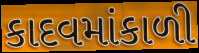
કાદવમાંકાળી